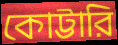
কোট্টারি